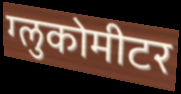
ग्लुकोमीटर